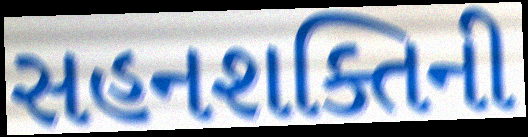
સહનશક્તિની